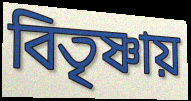
বিতৃষ্ণায়